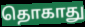
தொகாது